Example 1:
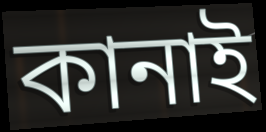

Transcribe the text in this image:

কানাই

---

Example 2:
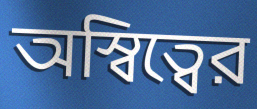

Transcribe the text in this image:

অস্বিত্বের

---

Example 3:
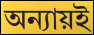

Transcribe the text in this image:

অন্যায়ই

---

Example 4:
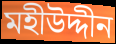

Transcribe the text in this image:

মহীউদ্দীন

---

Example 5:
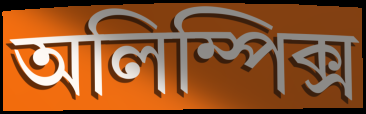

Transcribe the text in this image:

অলিম্পিক্স